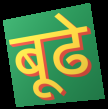
बूढे